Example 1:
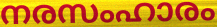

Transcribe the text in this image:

നരസംഹാരം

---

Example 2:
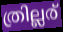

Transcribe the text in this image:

ത്രില്ലര്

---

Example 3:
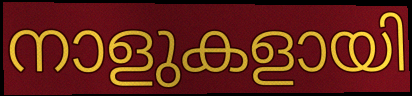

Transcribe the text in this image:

നാളുകളായി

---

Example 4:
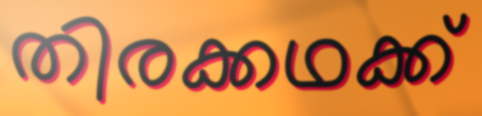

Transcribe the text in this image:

തിരക്കഥക്ക്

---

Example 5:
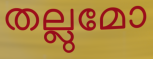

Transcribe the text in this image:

തല്ലുമോ